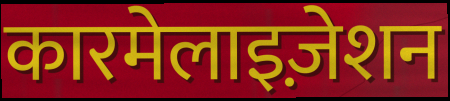
कारमेलाइज़ेशन